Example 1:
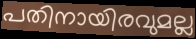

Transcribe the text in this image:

പതിനായിരവുമല്ല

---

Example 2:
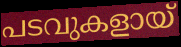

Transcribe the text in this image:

പടവുകളായ്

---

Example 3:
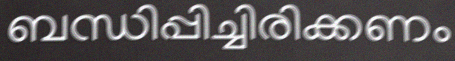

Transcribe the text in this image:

ബന്ധിപ്പിച്ചിരിക്കണം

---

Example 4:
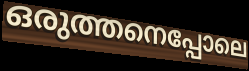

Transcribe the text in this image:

ഒരുത്തനെപ്പോലെ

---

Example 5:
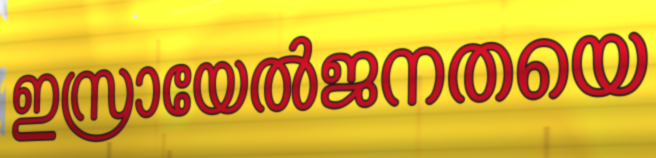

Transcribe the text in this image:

ഇസ്രായേൽജനതയെ